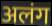
अलंग